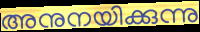
അനുനയിക്കുന്നു